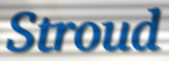
Stroud